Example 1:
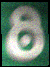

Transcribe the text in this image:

ఠి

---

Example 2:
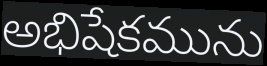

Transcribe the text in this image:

అభిషేకమును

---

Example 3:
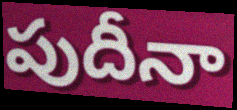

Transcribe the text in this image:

పుదీనా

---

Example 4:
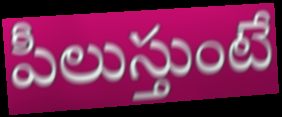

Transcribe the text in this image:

పీలుస్తుంటే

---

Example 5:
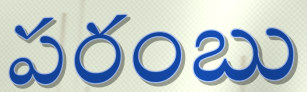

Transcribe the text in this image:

పరంబు